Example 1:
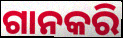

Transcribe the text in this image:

ଗାନକରି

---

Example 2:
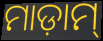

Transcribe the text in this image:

ମାଡ଼ାମ୍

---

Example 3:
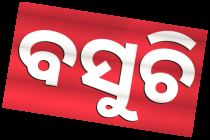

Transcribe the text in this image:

ବସୁଚି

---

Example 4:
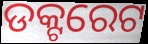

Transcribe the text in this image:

ଡକ୍ଟରେଟ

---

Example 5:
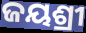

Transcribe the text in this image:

ଜୟଶ୍ରୀ